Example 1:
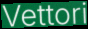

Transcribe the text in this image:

Vettori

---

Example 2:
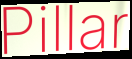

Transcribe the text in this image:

Pillar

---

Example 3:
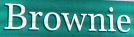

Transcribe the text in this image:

Brownie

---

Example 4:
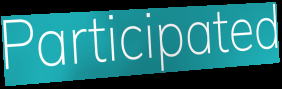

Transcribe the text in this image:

Participated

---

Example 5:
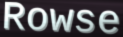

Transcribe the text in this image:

Rowse